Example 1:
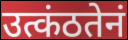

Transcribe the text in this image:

उत्कंठतेनं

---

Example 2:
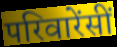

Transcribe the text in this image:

परिवारेंसीं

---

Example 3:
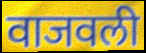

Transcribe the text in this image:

वाजवली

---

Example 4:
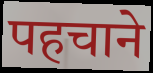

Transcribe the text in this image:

पहचाने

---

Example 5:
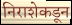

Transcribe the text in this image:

निराशेकडून